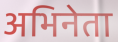
अभिनेता